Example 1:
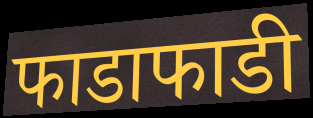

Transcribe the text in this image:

फाडाफाडी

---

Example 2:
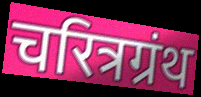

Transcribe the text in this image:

चरित्रग्रंथ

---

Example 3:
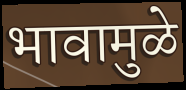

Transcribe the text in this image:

भावामुळे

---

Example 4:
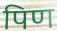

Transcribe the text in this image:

पिण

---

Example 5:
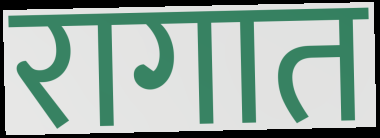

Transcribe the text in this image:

रागात